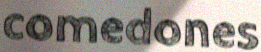
comedones